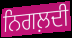
ਨਿਗਲ਼ਦੀ